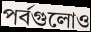
পর্বগুলোও